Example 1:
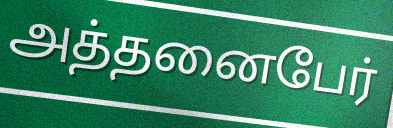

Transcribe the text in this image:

அத்தனைபேர்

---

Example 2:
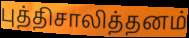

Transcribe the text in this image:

புத்திசாலித்தனம்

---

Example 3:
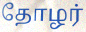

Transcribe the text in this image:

தோழர்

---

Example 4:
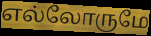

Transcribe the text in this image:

எல்லோருமே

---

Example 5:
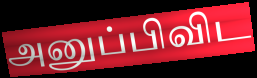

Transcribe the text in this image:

அனுப்பிவிட